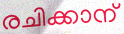
രചിക്കാന്